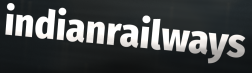
indianrailways